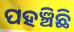
ପହଞ୍ଚିଛି